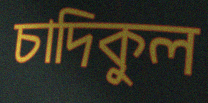
চাদিকুল